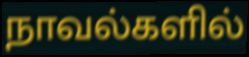
நாவல்களில்